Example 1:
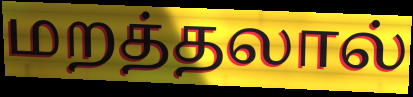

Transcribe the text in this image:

மறத்தலால்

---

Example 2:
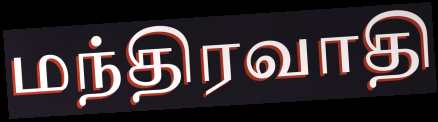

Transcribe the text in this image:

மந்திரவாதி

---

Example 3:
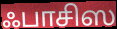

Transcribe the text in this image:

ஃபாசிஸ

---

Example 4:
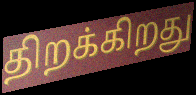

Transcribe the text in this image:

திறக்கிறது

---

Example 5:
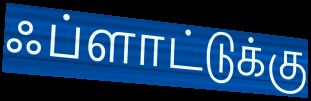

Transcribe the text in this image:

ஃப்ளாட்டுக்கு